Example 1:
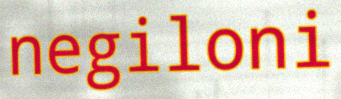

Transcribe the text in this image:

negiloni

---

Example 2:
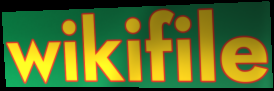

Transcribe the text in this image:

wikifile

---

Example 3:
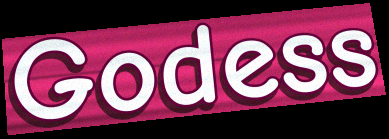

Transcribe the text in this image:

Godess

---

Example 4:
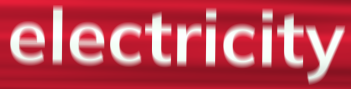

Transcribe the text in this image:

electricity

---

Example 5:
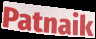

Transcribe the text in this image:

Patnaik